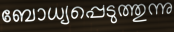
ബോധ്യപ്പെടുത്തുന്നു